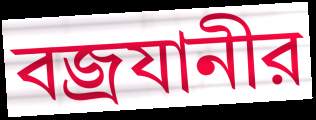
বজ্রযানীর